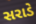
સરાડે